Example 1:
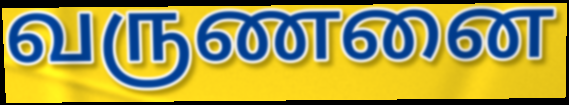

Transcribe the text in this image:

வருணனை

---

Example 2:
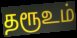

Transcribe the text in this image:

தரூஉம்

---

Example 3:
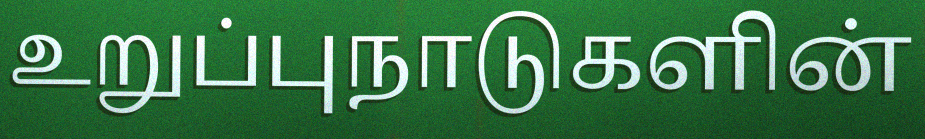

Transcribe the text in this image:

உறுப்புநாடுகளின்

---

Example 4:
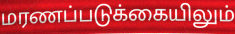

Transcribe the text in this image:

மரணப்படுக்கையிலும்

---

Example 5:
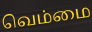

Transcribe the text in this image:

வெம்மை